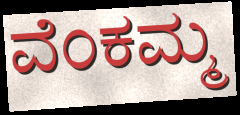
ವೆಂಕಮ್ಮ